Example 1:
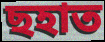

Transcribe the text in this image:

ছহাত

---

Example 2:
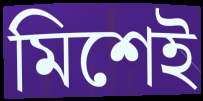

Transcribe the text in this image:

মিশেই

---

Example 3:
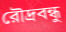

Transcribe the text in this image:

রৌদ্রবন্ধু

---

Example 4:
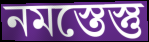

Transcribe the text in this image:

নমস্তেস্তু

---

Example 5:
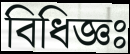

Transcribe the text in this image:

বিধিজ্ঞঃ